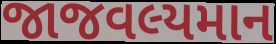
જાજવલ્યમાન